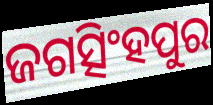
ଜଗତ୍ସିଂହପୁର